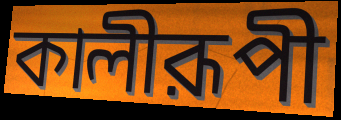
কালীরূপী